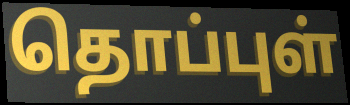
தொப்புள்